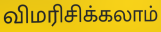
விமரிசிக்கலாம்